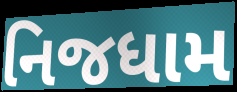
નિજધામ